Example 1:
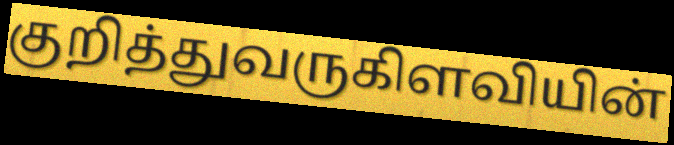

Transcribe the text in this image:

குறித்துவருகிளவியின்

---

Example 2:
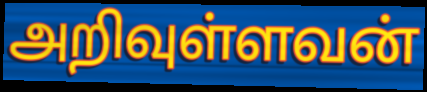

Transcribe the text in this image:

அறிவுள்ளவன்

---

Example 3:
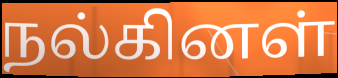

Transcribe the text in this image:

நல்கினள்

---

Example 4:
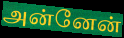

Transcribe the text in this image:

அன்னேன்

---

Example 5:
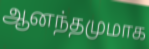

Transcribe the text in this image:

ஆனந்தமுமாக